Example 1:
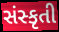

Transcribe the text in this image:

સંસ્કૃતી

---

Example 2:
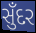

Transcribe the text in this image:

સુઁદર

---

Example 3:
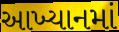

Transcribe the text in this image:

આખ્યાનમાં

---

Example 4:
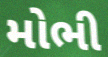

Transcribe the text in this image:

મોભી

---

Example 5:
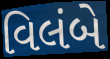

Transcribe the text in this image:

વિલંબે